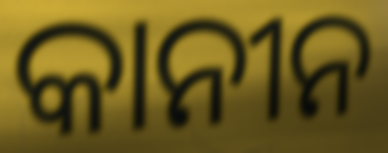
କାନୀନ